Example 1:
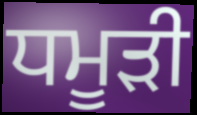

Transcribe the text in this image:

ਧਮੂੜੀ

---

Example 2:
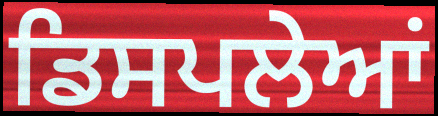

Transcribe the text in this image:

ਡਿਸਪਲੇਆਂ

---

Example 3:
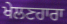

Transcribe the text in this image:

ਖੇਲਣਹਾਰਾ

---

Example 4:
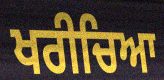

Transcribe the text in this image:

ਖਰੀਚਿਆ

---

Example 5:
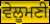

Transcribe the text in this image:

ਵੇਲੂਮਣੀ